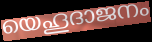
യെഹൂദാജനം